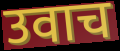
उवाच